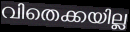
വിതെക്കയില്ല